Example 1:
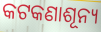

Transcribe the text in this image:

କଟକଣାଶୂନ୍ୟ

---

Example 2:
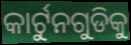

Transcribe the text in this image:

କାର୍ଟୁନଗୁଡିକୁ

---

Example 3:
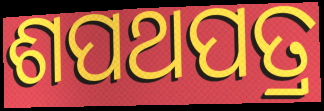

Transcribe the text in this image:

ଶପଥପତ୍ର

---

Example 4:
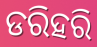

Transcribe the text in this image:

ଡରିହରି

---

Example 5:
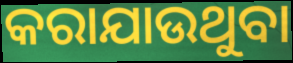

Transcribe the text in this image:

କରାଯାଉଥୁବା